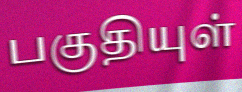
பகுதியுள்